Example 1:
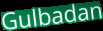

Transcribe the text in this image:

Gulbadan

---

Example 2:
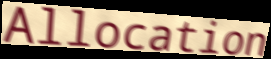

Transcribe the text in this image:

Allocation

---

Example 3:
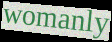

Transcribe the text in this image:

womanly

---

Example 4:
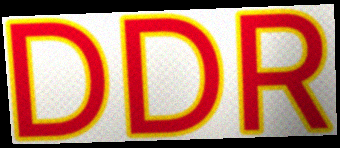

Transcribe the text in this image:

DDR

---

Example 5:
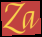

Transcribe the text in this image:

Za